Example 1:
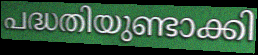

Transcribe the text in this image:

പദ്ധതിയുണ്ടാക്കി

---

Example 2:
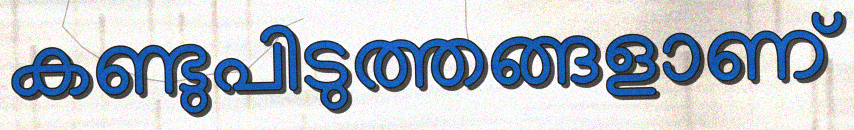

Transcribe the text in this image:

കണ്ടുപിടുത്തങ്ങളാണ്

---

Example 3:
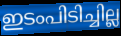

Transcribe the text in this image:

ഇടംപിടിച്ചില്ല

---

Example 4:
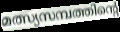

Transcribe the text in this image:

മത്സ്യസമ്പത്തിന്റെ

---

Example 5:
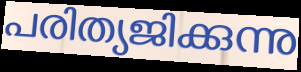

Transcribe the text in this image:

പരിത്യജിക്കുന്നു